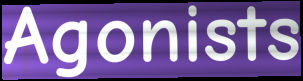
Agonists